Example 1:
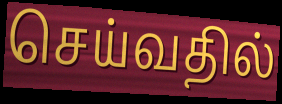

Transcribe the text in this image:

செய்வதில்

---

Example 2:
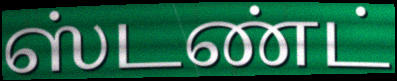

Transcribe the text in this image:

ஸ்டண்ட்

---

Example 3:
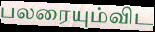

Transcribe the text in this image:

பலரையும்விட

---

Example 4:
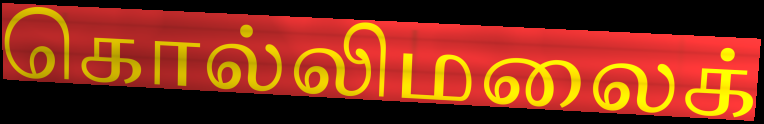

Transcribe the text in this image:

கொல்லிமலைக்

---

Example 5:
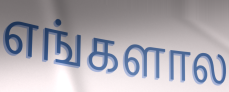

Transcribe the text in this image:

எங்களால